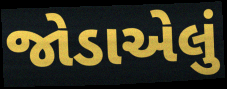
જોડાએલું